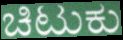
ಚಿಟುಕು